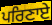
ਪਰਿਣਾਏ